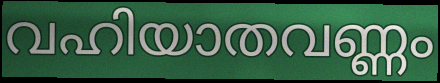
വഹിയാതവണ്ണം